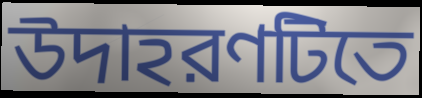
উদাহরণটিতে